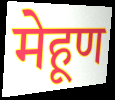
मेहूण